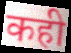
कही